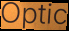
Optic